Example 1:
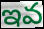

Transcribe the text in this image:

ఇవ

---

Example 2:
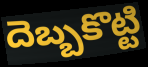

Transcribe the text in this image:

దెబ్బకొట్టి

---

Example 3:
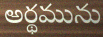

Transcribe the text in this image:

అర్థమును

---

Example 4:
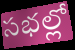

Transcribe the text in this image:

సభల్లో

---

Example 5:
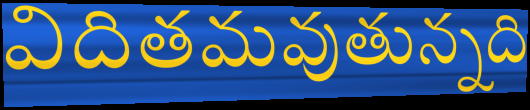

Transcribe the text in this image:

విదితమవుతున్నది